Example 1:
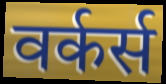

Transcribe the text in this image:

वर्कर्स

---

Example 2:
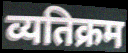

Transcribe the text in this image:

व्यतिक्रम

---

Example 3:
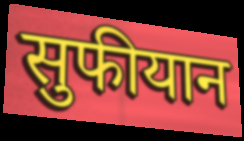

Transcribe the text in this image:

सुफीयान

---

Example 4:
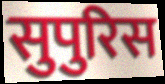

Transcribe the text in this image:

सुपुरिस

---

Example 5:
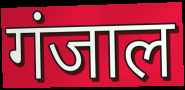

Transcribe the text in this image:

गंजाल